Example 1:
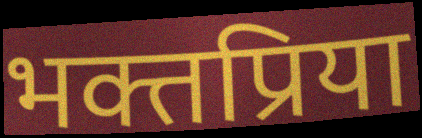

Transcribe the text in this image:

भक्तप्रिया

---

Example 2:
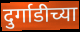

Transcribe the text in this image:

दुर्गाडीच्या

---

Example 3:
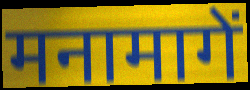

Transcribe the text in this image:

मनामागें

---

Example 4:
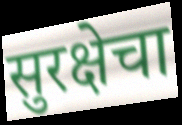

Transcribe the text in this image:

सुरक्षेचा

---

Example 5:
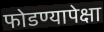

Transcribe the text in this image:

फोडण्यापेक्षा